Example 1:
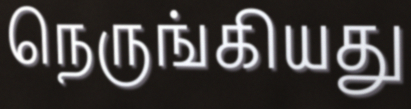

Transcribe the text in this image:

நெருங்கியது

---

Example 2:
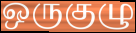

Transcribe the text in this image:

ஒருகுழு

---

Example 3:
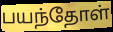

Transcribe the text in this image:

பயந்தோள்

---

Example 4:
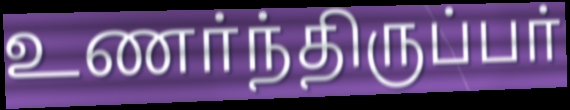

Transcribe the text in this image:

உணர்ந்திருப்பர்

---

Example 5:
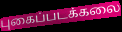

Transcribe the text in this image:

புகைப்படக்கலை